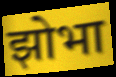
झोभा